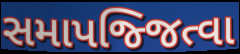
સમાપજ્જિત્વા